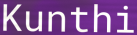
Kunthi